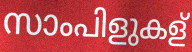
സാംപിളുകള്